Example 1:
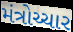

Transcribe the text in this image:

મંત્રોચ્ચાર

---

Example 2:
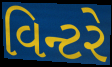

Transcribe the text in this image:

વિન્ટરે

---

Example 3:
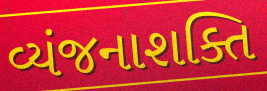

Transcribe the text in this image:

વ્યંજનાશક્તિ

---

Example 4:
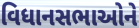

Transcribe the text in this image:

વિધાનસભાઓને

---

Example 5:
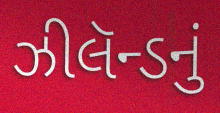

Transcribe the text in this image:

ઝીલૅન્ડનું